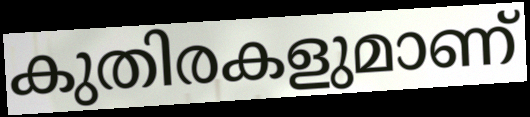
കുതിരകളുമാണ്